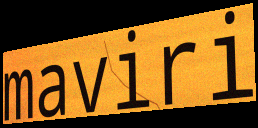
maviri